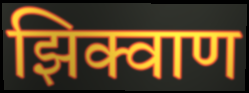
झिक्वाण